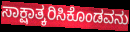
ಸಾಕ್ಷಾತ್ಕರಿಸಿಕೊಂಡವನು